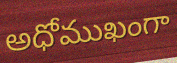
అధోముఖంగా